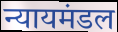
न्यायमंडल